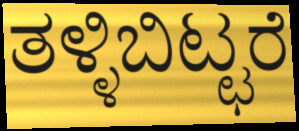
ತಳ್ಳಿಬಿಟ್ಟರೆ